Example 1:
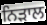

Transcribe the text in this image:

ਨਿੜਾਲ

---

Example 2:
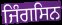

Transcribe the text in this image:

ਜਿੰਗਸਿਨ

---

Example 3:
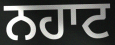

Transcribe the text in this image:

ਨਹਾਟ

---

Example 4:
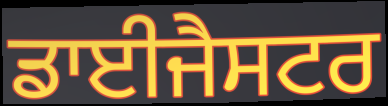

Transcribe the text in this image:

ਡਾਈਜੈਸਟਰ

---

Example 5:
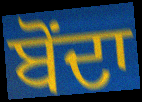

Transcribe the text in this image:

ਬੋੰਦਾ